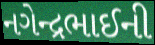
નગેન્દ્રભાઈની